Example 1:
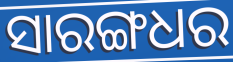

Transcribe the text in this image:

ସାରଙ୍ଗଧର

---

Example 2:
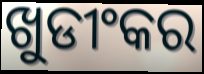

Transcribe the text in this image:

ଖୁଡୀଂକର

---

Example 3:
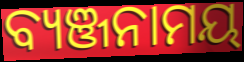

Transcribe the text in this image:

ବ୍ୟଞ୍ଜନାମୟ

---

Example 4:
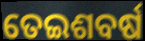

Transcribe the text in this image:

ତେଇଶବର୍ଷ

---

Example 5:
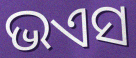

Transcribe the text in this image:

ଭଏସ